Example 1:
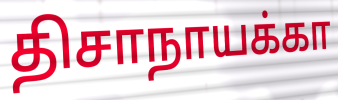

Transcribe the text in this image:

திசாநாயக்கா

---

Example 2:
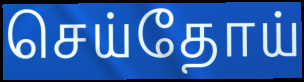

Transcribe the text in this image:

செய்தோய்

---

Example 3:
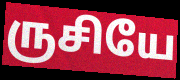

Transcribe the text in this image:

ருசியே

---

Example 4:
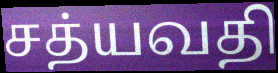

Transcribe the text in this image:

சத்யவதி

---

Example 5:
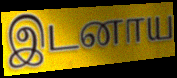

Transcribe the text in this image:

இடனாய